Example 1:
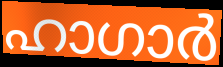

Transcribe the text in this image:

ഹാഗാർ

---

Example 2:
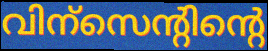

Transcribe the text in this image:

വിന്സെന്റിന്റെ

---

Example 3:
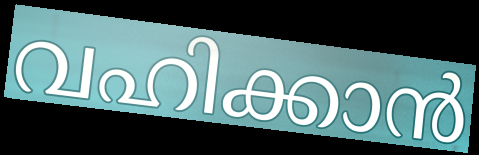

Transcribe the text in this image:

വഹിക്കാൻ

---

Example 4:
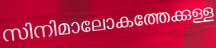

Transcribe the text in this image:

സിനിമാലോകത്തേക്കുള്ള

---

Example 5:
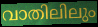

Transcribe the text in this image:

വാതിലിലും